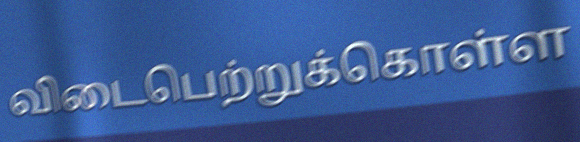
விடைபெற்றுக்கொள்ள